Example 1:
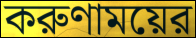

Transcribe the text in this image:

করুণাময়ের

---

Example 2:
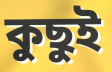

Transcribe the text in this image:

কুছুই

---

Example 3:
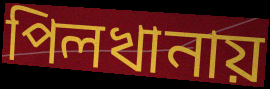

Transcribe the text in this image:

পিলখানায়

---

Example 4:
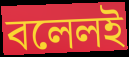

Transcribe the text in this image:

বলেলই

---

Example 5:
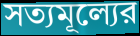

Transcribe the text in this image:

সত্যমূল্যের